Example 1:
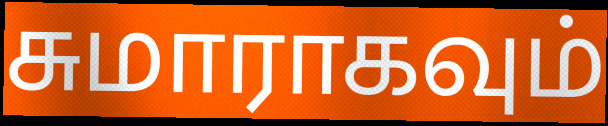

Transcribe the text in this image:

சுமாராகவும்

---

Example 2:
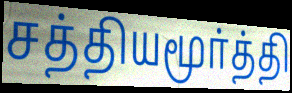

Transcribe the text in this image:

சத்தியமூர்த்தி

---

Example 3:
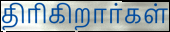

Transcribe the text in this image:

திரிகிறார்கள்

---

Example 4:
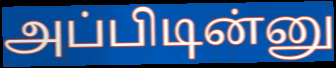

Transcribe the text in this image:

அப்பிடின்னு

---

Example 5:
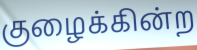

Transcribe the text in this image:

குழைக்கின்ற